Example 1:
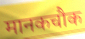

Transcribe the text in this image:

मानकचौक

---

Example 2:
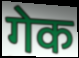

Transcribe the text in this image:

गेक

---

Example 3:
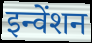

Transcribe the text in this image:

इन्वेंशन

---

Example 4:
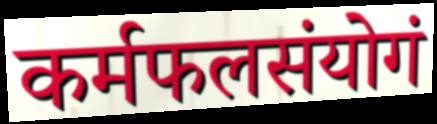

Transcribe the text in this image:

कर्मफलसंयोगं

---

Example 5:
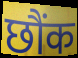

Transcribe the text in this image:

छौंक